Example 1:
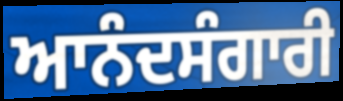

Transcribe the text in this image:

ਆਨੰਦਸੰਗਾਰੀ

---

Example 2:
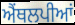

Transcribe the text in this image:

ਐਂਥਲਪੀਆਂ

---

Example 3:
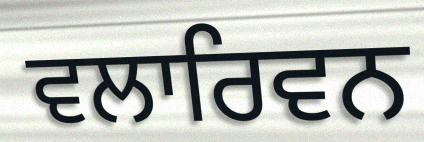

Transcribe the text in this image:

ਵਲਾਰਿਵਨ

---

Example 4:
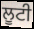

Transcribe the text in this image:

ਲੂਟੀ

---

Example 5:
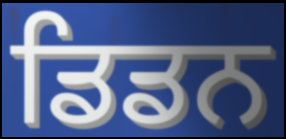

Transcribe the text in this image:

ਡਿਡਨ